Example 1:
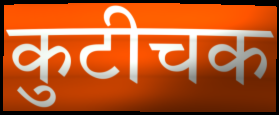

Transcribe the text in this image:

कुटीचक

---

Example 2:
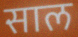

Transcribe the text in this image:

साल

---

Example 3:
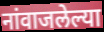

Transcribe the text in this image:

नांवाजलेल्या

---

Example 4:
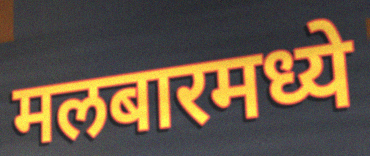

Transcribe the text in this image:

मलबारमध्ये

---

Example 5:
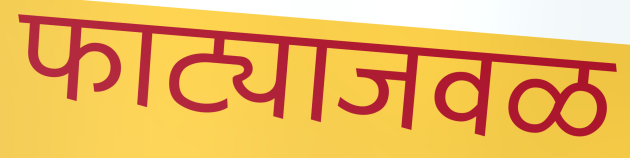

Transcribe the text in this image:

फाट्याजवळ